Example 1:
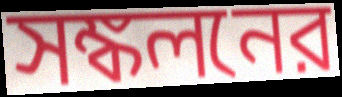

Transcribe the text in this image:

সঙ্কলনের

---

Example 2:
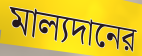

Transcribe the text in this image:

মাল্যদানের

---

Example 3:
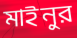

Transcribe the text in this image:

মাইনুর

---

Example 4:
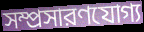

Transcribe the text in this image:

সম্প্রসারণযোগ্য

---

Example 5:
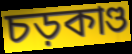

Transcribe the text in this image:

চড়কাণ্ড